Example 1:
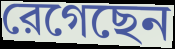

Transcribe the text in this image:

রেগেছেন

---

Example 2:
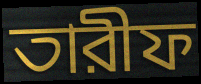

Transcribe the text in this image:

তারীফ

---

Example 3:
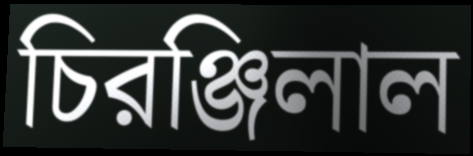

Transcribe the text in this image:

চিরঞ্জিলাল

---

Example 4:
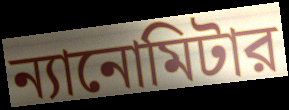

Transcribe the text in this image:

ন্যানোমিটার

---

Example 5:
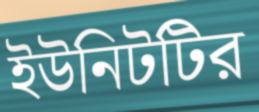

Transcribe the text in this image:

ইউনিটটির